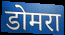
डोमरा